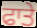
ਫਾਤੇ